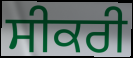
ਸੀਕਰੀ